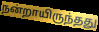
நன்றாயிருந்தது